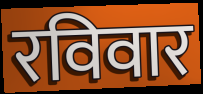
रविवार